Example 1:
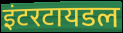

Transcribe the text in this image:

इंटरटायडल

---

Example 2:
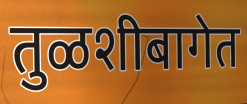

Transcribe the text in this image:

तुळशीबागेत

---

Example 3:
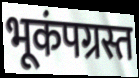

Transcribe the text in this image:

भूकंपग्रस्त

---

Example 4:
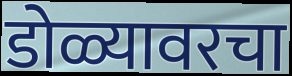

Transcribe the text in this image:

डोळ्यावरचा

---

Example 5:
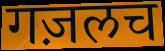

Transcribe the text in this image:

गज़लच